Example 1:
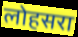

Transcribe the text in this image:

लोहसरा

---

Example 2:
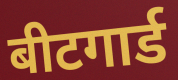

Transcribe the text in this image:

बीटगार्ड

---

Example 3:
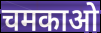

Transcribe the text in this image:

चमकाओ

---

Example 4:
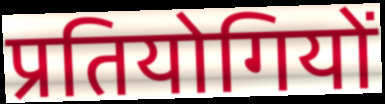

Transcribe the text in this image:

प्रतियोगियों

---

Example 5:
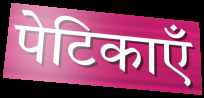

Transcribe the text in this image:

पेटिकाएँ